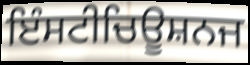
ਇੰਸਟੀਚਿਊਸ਼ਨਜ